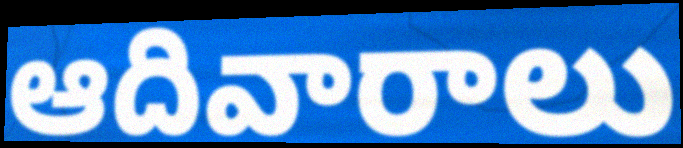
ఆదివారాలు